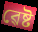
ৱেষ্ট